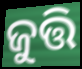
ଜୁତ୍ତି